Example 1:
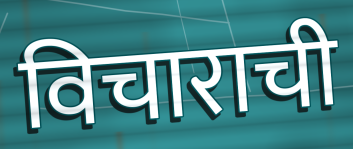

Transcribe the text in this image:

विचाराची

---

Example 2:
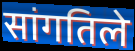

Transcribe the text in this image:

सांगतिले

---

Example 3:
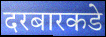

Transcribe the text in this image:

दरबारकडे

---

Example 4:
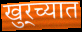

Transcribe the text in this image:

खुर्च्यात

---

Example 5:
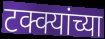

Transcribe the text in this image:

टक्क्यांच्या